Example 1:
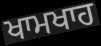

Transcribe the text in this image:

ਖਾਮਖਾਹ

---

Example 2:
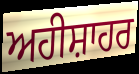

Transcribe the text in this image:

ਅਹੀਸ਼ਾਹਰ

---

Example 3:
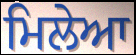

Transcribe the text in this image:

ਮਿਲੇਆ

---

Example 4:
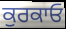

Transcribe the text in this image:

ਕੁਰਕਾਓ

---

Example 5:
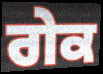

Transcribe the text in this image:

ਗੇਕ